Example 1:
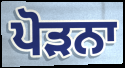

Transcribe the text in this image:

ਪੋੜਨਾ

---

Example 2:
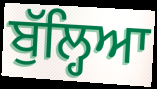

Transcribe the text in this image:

ਬੁੱਲ੍ਹਿਆ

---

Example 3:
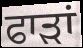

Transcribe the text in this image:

ਫਾੜਾਂ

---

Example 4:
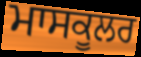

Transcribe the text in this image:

ਮਾਸਕੂਲਰ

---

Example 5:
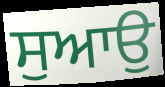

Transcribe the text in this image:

ਸੁਆਉ